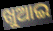
ଖୁଆଇ